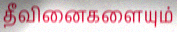
தீவினைகளையும்